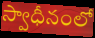
స్వాధీనంలో